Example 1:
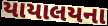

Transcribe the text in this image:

યાયાલયના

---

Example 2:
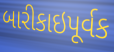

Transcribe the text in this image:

બારીકાઇપૂર્વક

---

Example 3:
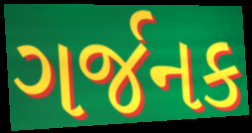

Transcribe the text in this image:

ગર્જનક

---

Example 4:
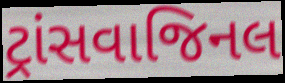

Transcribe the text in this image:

ટ્રાંસવાજિનલ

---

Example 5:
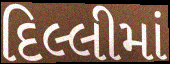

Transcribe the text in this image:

દિલ્લીમાં